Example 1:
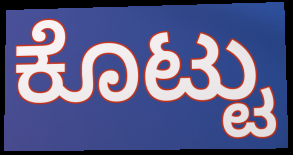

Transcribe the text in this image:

ಕೊಟ್ಟು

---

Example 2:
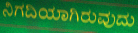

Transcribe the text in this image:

ನಿಗದಿಯಾಗಿರುವುದು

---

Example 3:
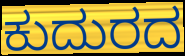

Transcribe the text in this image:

ಕುದುರದ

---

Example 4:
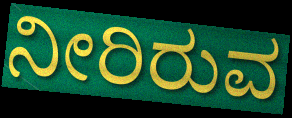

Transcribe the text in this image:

ನೀರಿರುವ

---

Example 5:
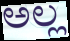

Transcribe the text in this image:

ಅಲ್ಲ